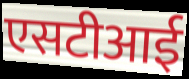
एसटीआई